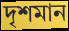
দৃশমান